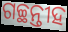
ଗଚ୍ଛନ୍ତୀହ